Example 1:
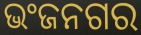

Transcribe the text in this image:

ଭଂଜନଗର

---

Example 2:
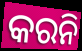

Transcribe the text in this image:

କରନି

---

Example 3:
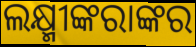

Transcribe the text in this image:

ଲକ୍ଷ୍ମୀଙ୍କରାଙ୍କର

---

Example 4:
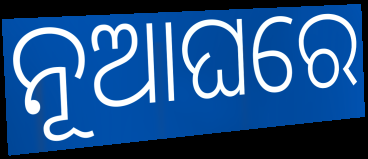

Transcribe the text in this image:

ନୂଆଘରେ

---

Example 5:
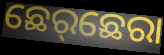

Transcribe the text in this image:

ଛେର୍‌ଛେରା